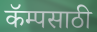
कॅम्पसाठी